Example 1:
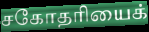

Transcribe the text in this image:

சகோதரியைக்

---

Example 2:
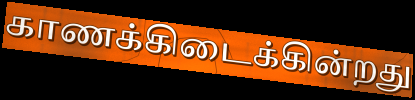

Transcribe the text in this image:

காணக்கிடைக்கின்றது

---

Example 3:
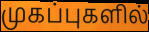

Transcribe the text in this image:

முகப்புகளில்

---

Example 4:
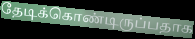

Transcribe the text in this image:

தேடிக்கொண்டிருப்பதாக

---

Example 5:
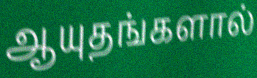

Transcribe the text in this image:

ஆயுதங்களால்